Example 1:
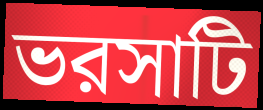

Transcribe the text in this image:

ভরসাটি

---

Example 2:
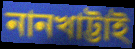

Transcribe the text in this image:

নানখাট্টাই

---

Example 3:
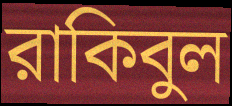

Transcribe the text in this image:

রাকিবুল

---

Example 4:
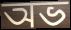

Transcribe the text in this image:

অভ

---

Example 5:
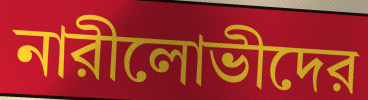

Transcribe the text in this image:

নারীলোভীদের